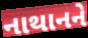
નાથાનને